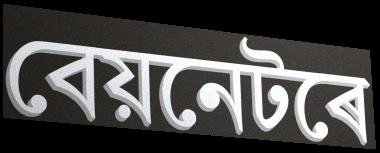
বেয়নেটৰে